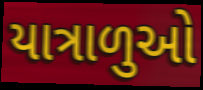
યાત્રાળુઓ